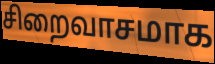
சிறைவாசமாக